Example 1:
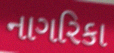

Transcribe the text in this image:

નાગરિકા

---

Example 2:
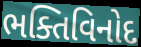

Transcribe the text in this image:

ભક્તિવિનોદ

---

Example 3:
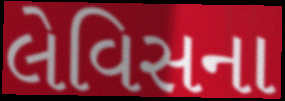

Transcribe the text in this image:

લેવિસના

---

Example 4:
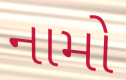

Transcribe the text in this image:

નામો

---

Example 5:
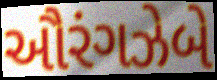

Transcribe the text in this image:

ઔરંગઝેબે